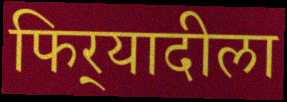
फिर्यादीला